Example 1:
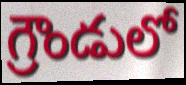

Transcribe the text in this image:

గ్రౌండులో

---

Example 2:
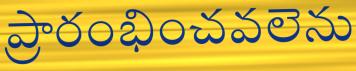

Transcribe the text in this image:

ప్రారంభించవలెను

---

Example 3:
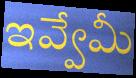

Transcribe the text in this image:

ఇవ్వేమీ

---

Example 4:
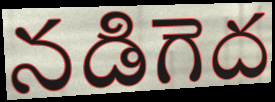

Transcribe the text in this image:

నడిగెద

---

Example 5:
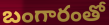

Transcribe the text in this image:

బంగారంతో